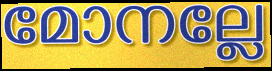
മോനല്ലേ